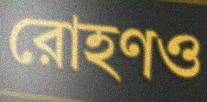
রোহণও